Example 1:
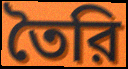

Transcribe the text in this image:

তৈরি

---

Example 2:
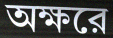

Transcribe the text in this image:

অক্ষরে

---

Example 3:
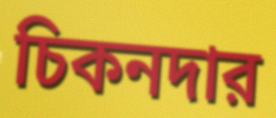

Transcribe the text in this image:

চিকনদার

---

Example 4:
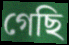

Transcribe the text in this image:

গেছি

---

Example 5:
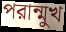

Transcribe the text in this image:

পরান্মুখ